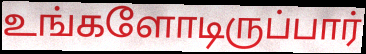
உங்களோடிருப்பார்